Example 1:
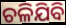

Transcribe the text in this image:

ଚଳିଯିବି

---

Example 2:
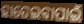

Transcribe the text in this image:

ହାତେଇବାପାଇଁ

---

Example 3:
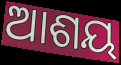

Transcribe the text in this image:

ଆଶୟ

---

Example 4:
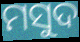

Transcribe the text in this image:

ମସୁଦ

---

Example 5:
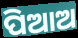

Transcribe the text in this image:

ପିଆଅ